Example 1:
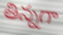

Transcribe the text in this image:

తిన్నగా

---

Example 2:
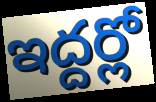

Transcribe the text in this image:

ఇద్దర్లో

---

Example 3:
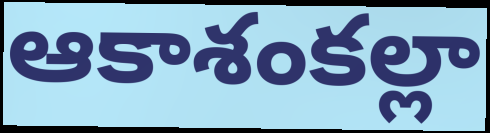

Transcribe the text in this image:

ఆకాశంకల్లా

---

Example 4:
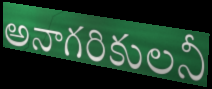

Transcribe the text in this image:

అనాగరికులనీ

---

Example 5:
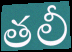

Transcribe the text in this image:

తలీ